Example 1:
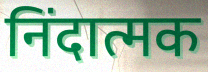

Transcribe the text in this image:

निंदात्मक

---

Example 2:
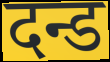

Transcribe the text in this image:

दन्ड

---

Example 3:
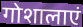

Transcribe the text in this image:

गोशालाएं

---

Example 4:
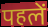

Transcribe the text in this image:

पहलें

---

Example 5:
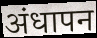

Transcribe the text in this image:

अंधापन